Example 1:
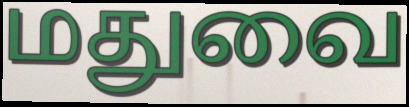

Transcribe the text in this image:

மதுவை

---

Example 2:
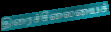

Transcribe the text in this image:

திரைச்சீலையைச்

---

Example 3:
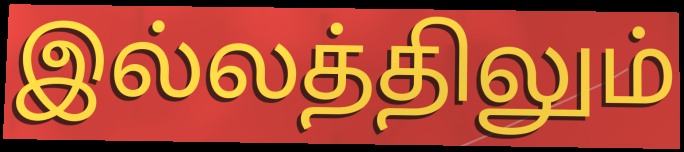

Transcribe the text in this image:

இல்லத்திலும்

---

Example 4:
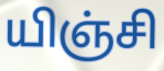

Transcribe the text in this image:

யிஞ்சி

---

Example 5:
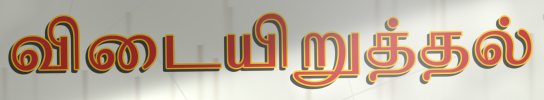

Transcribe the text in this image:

விடையிறுத்தல்